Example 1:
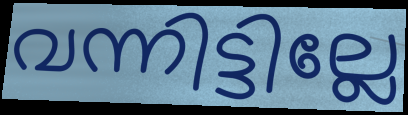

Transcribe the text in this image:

വന്നിട്ടില്ലേ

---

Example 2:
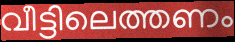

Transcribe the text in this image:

വീട്ടിലെത്തണം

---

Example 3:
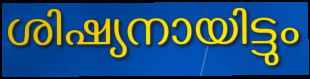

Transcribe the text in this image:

ശിഷ്യനായിട്ടും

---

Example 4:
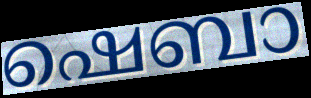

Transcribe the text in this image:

ഷെബാ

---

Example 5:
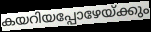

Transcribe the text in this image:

കയറിയപ്പോഴേയ്ക്കും